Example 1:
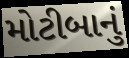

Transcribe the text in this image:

મોટીબાનું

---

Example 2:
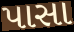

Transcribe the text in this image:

પાસા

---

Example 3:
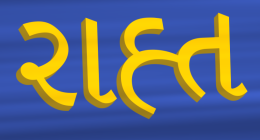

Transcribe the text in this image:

રાહ્ત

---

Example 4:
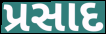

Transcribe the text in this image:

પ્રસાદ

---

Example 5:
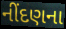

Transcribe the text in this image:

નીંદણના